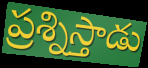
ప్రశ్నిస్తాడు